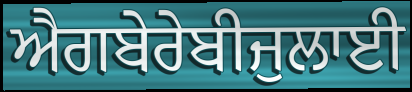
ਐਗਬੇਰੇਬੀਜੁਲਾਈ